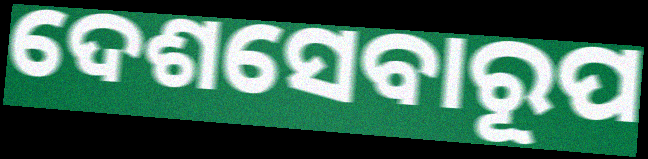
ଦେଶସେବାରୂପ